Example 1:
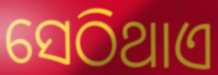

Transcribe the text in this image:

ସେଠିଥାଏ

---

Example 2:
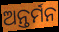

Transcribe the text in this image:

ଅନ୍ତର୍ମନ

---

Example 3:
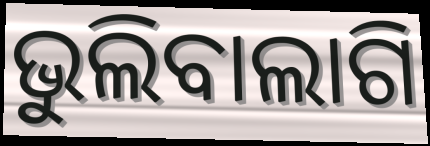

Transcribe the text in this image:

ଭୁଲିବାଲାଗି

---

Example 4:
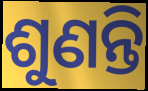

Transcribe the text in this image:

ଶୁଣନ୍ତି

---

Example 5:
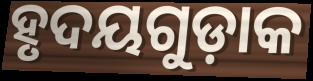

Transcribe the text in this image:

ହୃଦୟଗୁଡ଼ାକ